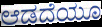
ಆಡದೆಯೂ